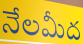
నేలమీద